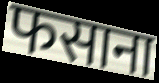
फसाना